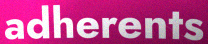
adherents